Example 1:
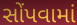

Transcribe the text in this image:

સોંપવામાં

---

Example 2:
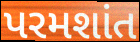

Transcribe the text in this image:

પરમશાંત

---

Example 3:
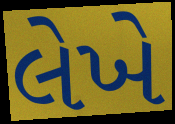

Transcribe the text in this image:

લેખે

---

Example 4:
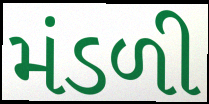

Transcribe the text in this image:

મંડળી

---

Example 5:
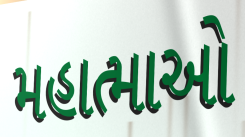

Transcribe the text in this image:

મહાત્માઓ